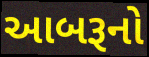
આબરૂનો